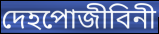
দেহপোজীবিনী